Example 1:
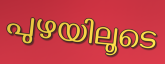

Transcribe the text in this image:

പുഴയിലൂടെ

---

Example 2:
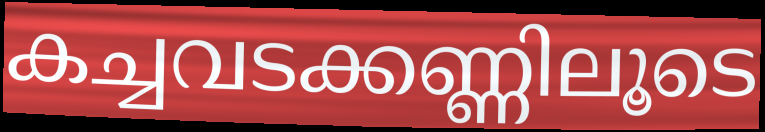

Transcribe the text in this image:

കച്ചവടക്കണ്ണിലൂടെ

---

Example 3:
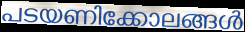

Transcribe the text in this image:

പടയണിക്കോലങ്ങൾ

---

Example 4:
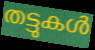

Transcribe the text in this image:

തട്ടുകൾ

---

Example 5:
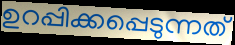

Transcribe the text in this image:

ഉറപ്പിക്കപ്പെടുന്നത്